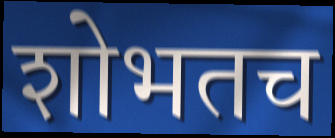
शोभतच